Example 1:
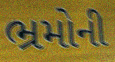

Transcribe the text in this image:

ભ્રમોની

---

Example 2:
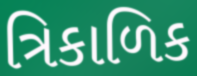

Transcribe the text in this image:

ત્રિકાળિક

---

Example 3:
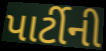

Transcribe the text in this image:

પાર્ટીની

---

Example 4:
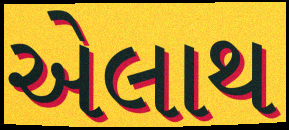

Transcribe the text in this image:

એલાથ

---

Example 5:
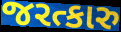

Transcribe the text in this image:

જરત્કારુ